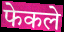
फेकले